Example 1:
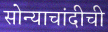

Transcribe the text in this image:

सोन्याचांदीची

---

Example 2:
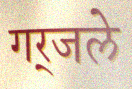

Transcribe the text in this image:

गर्जले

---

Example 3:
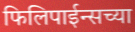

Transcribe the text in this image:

फिलिपाईन्सच्या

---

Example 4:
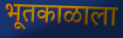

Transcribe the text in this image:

भूतकाळाला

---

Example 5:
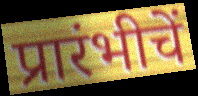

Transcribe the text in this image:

प्रारंभीचें